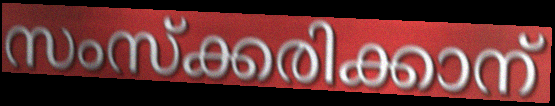
സംസ്ക്കരിക്കാന്